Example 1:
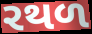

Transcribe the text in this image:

રથળ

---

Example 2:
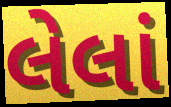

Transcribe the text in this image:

લેલાં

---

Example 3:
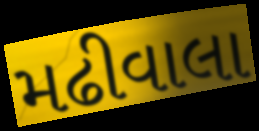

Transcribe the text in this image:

મઢીવાલા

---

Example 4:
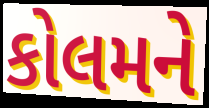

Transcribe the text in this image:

કોલમને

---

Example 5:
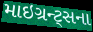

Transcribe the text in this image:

માઇગ્રન્ટ્સના